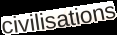
civilisations